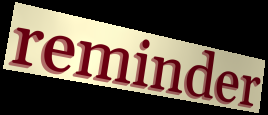
reminder